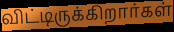
விட்டிருக்கிறார்கள்